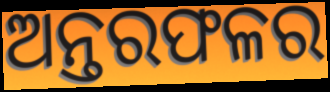
ଅନ୍ତରଫଳର